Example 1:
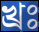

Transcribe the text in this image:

খ্রঃ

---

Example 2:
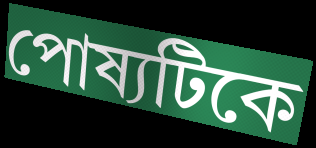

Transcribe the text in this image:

পোষ্যটিকে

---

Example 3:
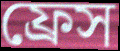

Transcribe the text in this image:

ফ্রেস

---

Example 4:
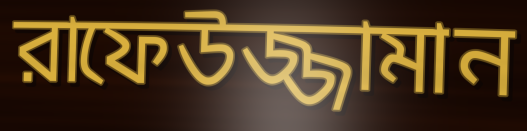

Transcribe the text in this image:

রাফেউজ্জামান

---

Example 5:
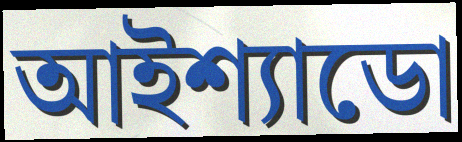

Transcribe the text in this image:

আইশ্যাডো